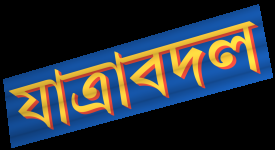
যাত্রাবদল